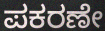
ಪಕರಣೇ